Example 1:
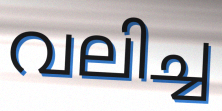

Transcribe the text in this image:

വലിച്ച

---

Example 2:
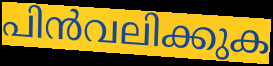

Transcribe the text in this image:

പിൻവലിക്കുക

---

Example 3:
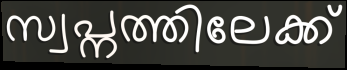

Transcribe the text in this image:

സ്വപ്നത്തിലേക്ക്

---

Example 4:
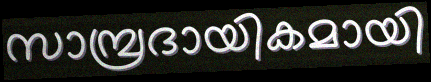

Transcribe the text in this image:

സാമ്പ്രദായികമായി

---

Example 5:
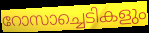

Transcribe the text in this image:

റോസാച്ചെടികളും